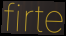
firte